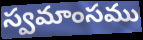
స్వమాంసము